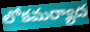
లోకమర్యాద